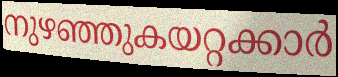
നുഴഞ്ഞുകയറ്റക്കാർ